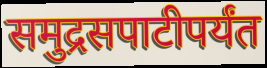
समुद्रसपाटीपर्यंत